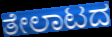
ತೇಲಾಟದ